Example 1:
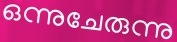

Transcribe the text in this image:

ഒന്നുചേരുന്നു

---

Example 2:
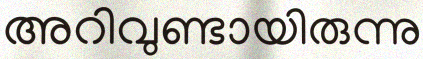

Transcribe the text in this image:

അറിവുണ്ടായിരുന്നു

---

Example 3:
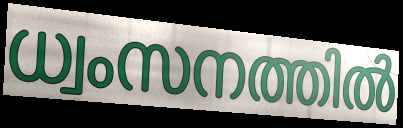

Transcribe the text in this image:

ധ്വംസനത്തിൽ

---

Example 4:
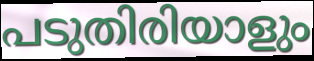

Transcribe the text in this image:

പടുതിരിയാളും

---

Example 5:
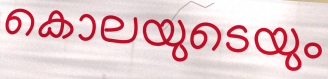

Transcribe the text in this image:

കൊലയുടെയും